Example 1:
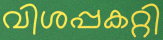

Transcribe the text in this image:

വിശപ്പകറ്റി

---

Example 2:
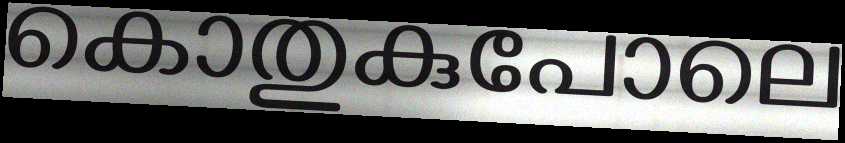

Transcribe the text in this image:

കൊതുകുപോലെ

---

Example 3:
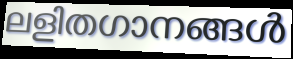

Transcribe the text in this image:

ലളിതഗാനങ്ങൾ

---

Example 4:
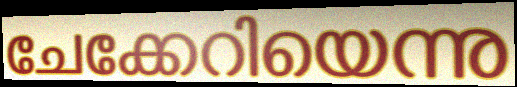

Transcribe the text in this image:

ചേക്കേറിയെന്നു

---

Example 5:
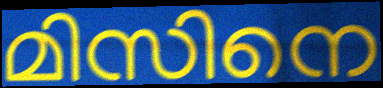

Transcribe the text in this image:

മിസിനെ